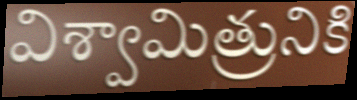
విశ్వామిత్రునికి